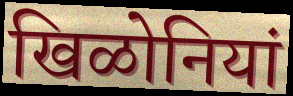
खिळोनियां